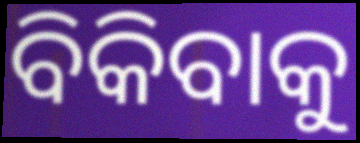
ବିକିବାକୁ